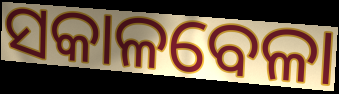
ସକାଳବେଳା